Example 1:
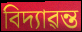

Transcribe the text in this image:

বিদ্যাৱন্ত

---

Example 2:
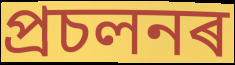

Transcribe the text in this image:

প্ৰচলনৰ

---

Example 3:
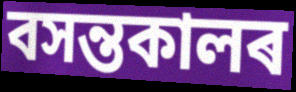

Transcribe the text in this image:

বসন্তকালৰ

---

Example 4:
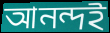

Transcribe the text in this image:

আনন্দই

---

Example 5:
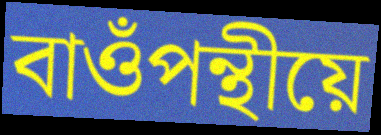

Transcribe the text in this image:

বাওঁপন্থীয়ে